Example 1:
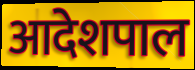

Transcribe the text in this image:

आदेशपाल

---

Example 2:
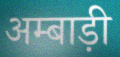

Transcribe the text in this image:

अम्बाड़ी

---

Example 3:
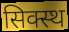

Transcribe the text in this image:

सिक्स्थ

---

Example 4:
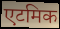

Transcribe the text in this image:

एटमिक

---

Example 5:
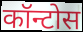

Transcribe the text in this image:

कॉन्टोस